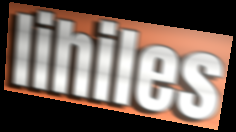
lihiles